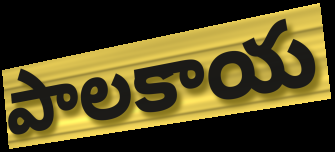
పాలకాయ